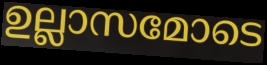
ഉല്ലാസമോടെ